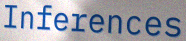
Inferences